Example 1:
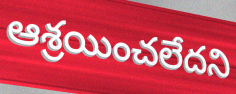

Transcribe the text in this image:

ఆశ్రయించలేదని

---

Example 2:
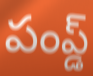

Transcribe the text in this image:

పంప్డ్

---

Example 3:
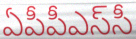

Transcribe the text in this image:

ఏపీపీఎస్‌సీ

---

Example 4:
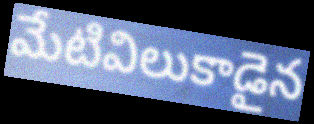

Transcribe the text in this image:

మేటివిలుకాడైన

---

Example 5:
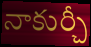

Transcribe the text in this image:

నాకుర్చీ